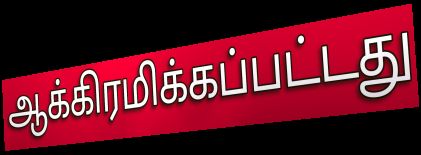
ஆக்கிரமிக்கப்பட்டது